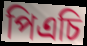
পিএচি